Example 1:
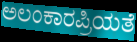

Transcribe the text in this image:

ಅಲಂಕಾರಪ್ರಿಯತೆ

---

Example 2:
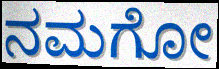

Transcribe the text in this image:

ನಮಗೋ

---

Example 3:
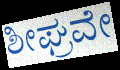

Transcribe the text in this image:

ಶೀಘ್ರವೇ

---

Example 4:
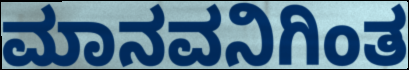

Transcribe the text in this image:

ಮಾನವನಿಗಿಂತ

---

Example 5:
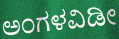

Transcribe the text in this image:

ಅಂಗಳವಿಡೀ